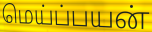
மெய்ப்பயன்